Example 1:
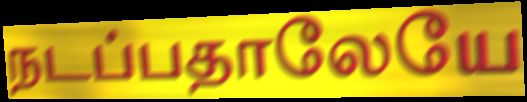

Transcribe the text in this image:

நடப்பதாலேயே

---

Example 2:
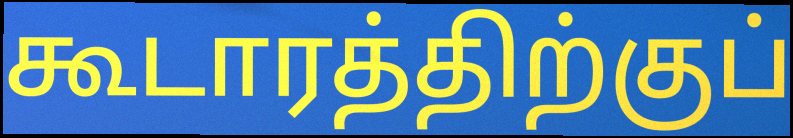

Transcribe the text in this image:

கூடாரத்திற்குப்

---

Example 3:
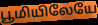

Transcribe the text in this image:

பூமியிலேயே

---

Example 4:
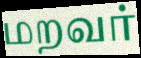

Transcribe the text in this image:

மறவர்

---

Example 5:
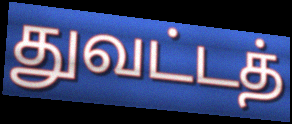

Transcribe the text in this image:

துவட்டத்